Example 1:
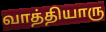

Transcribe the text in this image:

வாத்தியாரு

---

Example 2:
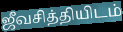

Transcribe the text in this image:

ஜீவசித்தியிடம்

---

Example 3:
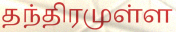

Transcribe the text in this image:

தந்திரமுள்ள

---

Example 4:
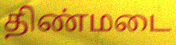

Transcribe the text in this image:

திண்மடை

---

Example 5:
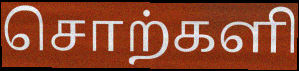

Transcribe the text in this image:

சொற்களி